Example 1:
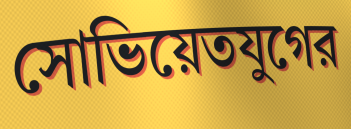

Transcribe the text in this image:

সোভিয়েতযুগের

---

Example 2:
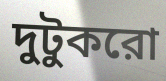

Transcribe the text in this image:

দুটুকরো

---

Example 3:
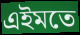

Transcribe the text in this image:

এইমতে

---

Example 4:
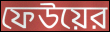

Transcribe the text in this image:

ফেউয়ের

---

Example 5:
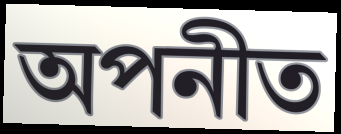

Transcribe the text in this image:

অপনীত